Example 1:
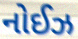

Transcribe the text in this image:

નોઈઝ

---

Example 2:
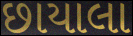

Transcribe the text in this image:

છાયાલા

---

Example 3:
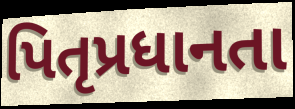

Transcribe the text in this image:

પિતૃપ્રધાનતા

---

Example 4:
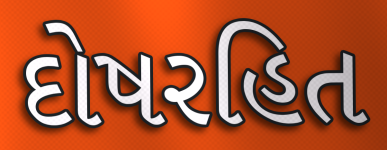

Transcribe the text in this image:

દોષરહિત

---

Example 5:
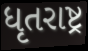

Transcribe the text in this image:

ધૃતરાષ્ટ્ર